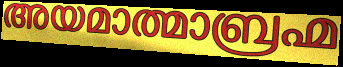
അയമാത്മാബ്രഹ്മ